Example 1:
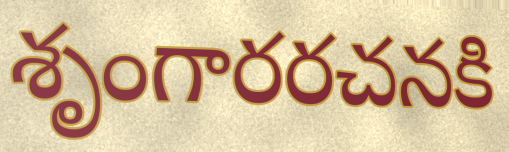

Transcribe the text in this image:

శృంగారరచనకి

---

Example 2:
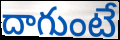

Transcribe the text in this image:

దాగుంటే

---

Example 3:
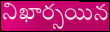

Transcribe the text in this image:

నిఖార్సయిన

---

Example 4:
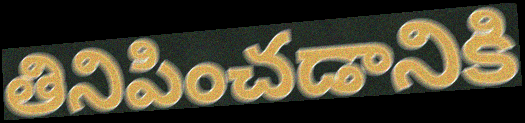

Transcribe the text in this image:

తినిపించడానికి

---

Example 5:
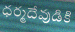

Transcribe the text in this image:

ధర్మదేవుడికి